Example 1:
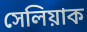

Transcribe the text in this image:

সেলিয়াক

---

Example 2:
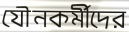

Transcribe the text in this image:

যৌনকর্মীদের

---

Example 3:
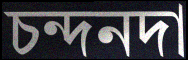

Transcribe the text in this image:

চন্দনদা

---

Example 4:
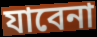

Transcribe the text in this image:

যাবেনা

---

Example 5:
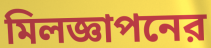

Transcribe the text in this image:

মিলজ্ঞাপনের